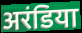
अरंडिया